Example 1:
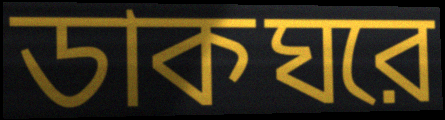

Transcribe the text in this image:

ডাকঘরে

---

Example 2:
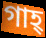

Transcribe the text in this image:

গাহ্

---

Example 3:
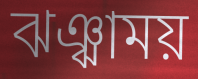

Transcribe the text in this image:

ঝঞ্ঝাময়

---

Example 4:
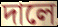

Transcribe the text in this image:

দালে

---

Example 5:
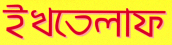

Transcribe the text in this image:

ইখতেলাফ